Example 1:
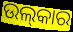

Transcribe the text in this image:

ଉଲ୍‍କାର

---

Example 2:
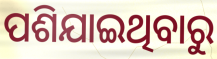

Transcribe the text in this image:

ପଶିଯାଇଥିବାରୁ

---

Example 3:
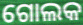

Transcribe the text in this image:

ଗୋଲକ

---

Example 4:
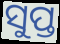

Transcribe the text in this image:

ସୁପ୍ତ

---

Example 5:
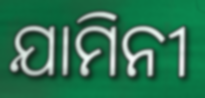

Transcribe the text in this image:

ଯାମିନୀ